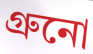
গ্রুনো